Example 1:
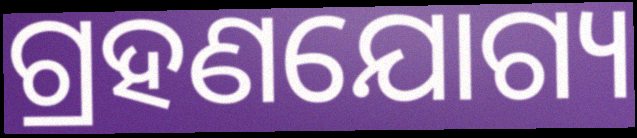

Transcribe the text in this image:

ଗ୍ରହଣଯୋଗ୍ୟ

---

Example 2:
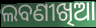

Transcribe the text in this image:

ଲବଣୀଖିଆ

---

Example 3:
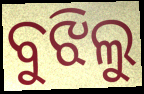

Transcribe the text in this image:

ବୁଝିଲୁ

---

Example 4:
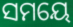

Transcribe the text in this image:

ସମୟେ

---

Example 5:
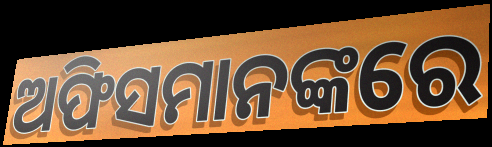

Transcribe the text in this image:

ଅଫିସମାନଙ୍କରେ